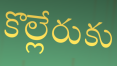
కొల్లేరుకు